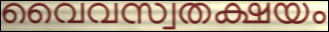
വൈവസ്വതക്ഷയം